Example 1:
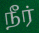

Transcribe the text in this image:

நீர்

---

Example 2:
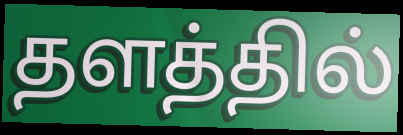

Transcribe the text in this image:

தளத்தில்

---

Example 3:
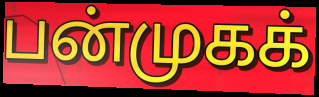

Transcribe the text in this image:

பன்முகக்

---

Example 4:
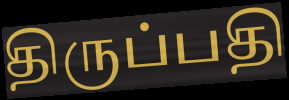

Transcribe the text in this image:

திருப்பதி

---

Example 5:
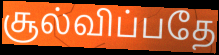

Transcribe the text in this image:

சூல்விப்பதே